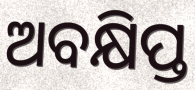
ଅବକ୍ଷିପ୍ତ